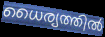
ധൈര്യത്തിൽ